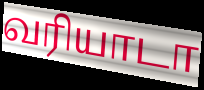
வரியாடா